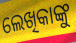
ଲେଖିକାଙ୍କୁ